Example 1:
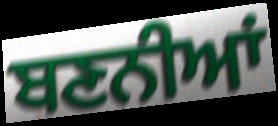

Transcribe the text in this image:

ਬਣਨੀਆਂ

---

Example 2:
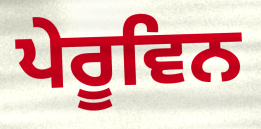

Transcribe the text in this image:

ਪੇਰੂਵਿਨ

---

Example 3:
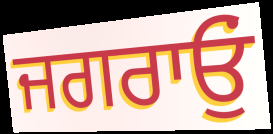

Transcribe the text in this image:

ਜਗਰਾਓੁਂ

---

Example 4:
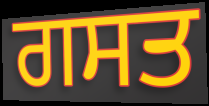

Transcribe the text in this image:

ਗਸਤ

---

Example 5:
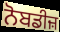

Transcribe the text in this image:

ਨੋਬਡੀਜ਼